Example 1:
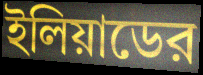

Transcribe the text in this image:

ইলিয়াডের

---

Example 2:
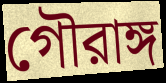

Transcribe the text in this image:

গৌরাঙ্গ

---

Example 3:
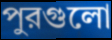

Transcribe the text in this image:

পুরগুলো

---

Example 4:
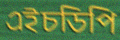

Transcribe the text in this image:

এইচডিপি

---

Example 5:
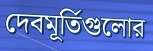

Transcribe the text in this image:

দেবমূর্তিগুলোর